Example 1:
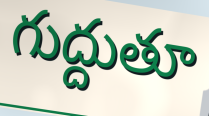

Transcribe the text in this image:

గుద్దుతూ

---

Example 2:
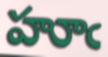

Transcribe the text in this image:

హూఁ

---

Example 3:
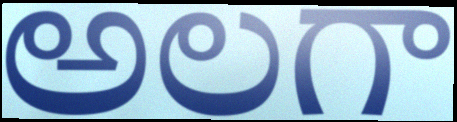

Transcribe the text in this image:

అలగా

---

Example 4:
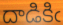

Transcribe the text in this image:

దాడికిఁ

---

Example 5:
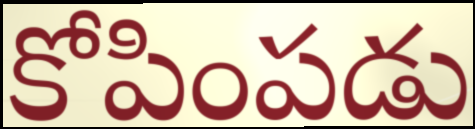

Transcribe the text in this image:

కోపింపడు